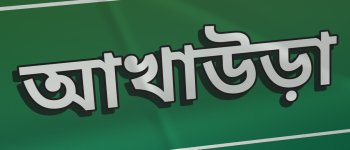
আখাউড়া